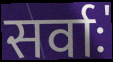
सर्वाः॑